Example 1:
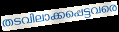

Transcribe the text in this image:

തടവിലാക്കപ്പെട്ടവരെ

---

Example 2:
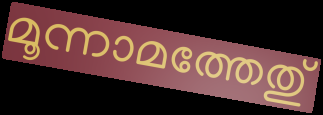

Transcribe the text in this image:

മൂന്നാമത്തേതു്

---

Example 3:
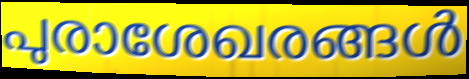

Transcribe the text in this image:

പുരാശേഖരങ്ങൾ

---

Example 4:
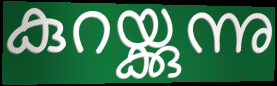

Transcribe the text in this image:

കുറയ്ക്കുന്നു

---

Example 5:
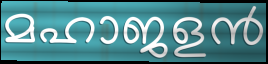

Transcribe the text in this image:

മഹാജളൻ